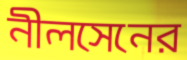
নীলসেনের